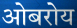
ओबरोय